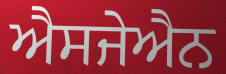
ਐਸਜੇਐਨ